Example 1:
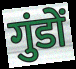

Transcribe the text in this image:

गुंडों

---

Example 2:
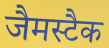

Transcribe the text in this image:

जैमस्टैक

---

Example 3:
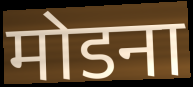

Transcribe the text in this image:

मोडना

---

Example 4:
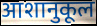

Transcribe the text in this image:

आशानुकूल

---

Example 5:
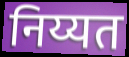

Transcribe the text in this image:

निय्यत